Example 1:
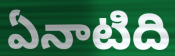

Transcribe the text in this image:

ఏనాటిది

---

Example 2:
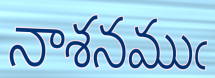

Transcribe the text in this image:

నాశనముఁ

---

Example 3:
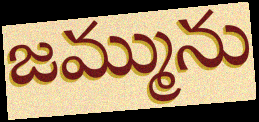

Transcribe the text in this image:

జమ్మును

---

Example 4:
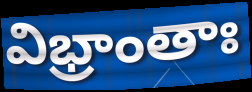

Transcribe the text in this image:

విభ్రాంతాః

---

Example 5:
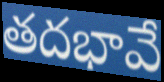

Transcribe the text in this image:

తదభావే